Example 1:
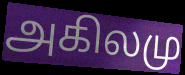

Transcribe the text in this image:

அகிலமு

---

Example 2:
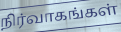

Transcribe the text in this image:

நிர்வாகங்கள்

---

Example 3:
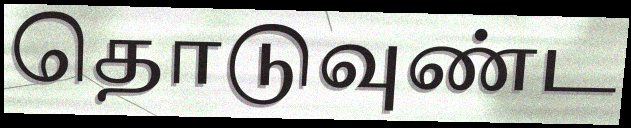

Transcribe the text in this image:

தொடுவுண்ட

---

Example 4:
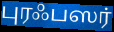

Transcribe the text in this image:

புரஃபஸர்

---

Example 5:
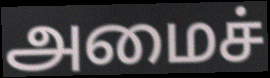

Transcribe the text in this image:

அமைச்